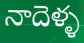
నాదెళ్ళ